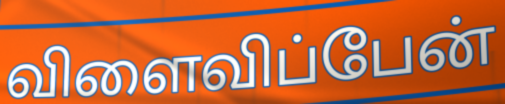
விளைவிப்பேன்